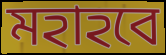
মহাহবে